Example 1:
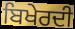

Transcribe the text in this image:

ਬਿਖੇਰਦੀ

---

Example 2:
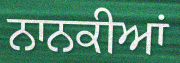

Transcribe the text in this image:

ਨਾਨਕੀਆਂ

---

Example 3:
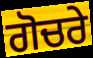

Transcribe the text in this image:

ਗੋਚਰੇ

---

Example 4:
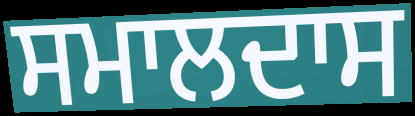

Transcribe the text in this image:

ਸਮਾਲਦਾਸ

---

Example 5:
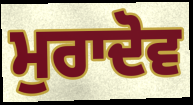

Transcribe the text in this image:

ਮੁਰਾਦੋਵ